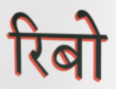
रिबो